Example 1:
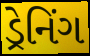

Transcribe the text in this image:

ડ્રેનિંગ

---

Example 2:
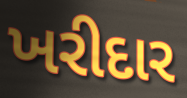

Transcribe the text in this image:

ખરીદાર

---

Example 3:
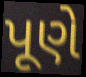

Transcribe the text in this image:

પૂણે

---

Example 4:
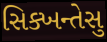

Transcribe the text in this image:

સિક્ખન્તેસુ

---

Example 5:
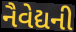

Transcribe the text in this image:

નૈવેદ્યની